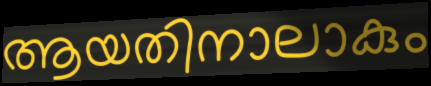
ആയതിനാലാകും